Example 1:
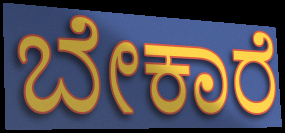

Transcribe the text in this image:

ಬೇಕಾರೆ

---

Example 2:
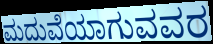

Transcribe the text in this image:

ಮದುವೆಯಾಗುವವರ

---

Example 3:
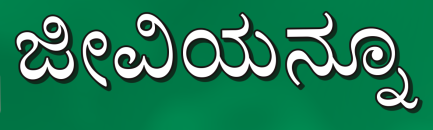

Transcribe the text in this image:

ಜೀವಿಯನ್ನೂ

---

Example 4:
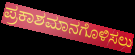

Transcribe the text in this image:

ಪ್ರಕಾಶಮಾನಗೊಳಿಸಲು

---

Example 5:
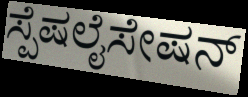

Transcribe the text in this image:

ಸ್ಪೆಷಲೈಸೇಷನ್